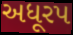
અધૂરપ